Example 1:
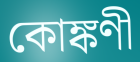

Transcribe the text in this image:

কোঙ্কণী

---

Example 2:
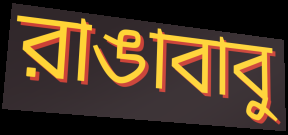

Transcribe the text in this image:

রাঙাবাবু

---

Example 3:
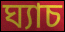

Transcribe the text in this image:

ঘ্যাচ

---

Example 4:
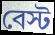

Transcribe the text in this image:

বেস্ট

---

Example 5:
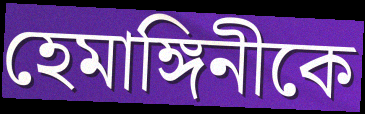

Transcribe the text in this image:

হেমাঙ্গিনীকে